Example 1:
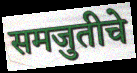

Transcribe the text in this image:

समजुतीचे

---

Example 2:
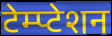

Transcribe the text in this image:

टेम्प्टेशन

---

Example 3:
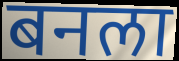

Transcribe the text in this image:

बनला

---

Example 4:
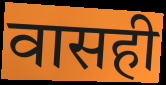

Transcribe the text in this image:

वासही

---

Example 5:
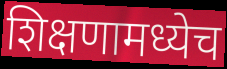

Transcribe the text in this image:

शिक्षणामध्येच